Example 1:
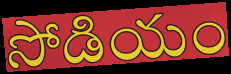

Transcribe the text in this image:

సోడియం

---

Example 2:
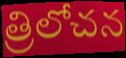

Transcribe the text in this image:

త్రిలోచన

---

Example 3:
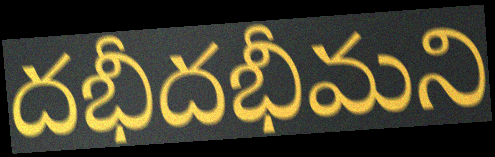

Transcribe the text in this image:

దభీదభీమని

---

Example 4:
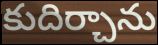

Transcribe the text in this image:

కుదిర్చాను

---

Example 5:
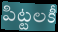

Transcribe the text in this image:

పిట్టలకీ